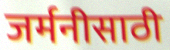
जर्मनीसाठी